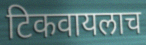
टिकवायलाच